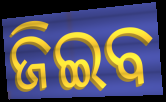
ଜିଇବ